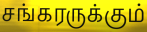
சங்கரருக்கும்